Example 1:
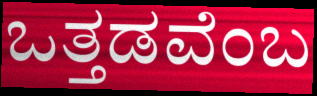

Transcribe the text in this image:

ಒತ್ತಡವೆಂಬ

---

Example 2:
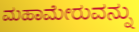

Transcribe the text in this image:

ಮಹಾಮೇರುವನ್ನು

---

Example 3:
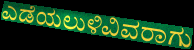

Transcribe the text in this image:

ಎಡೆಯಲುಳಿವಿವರಾಗು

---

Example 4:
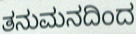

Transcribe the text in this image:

ತನುಮನದಿಂದ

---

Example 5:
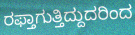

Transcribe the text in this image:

ರಫ್ತಾಗುತ್ತಿದ್ದುದರಿಂದ